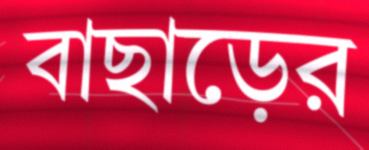
বাছাড়ের